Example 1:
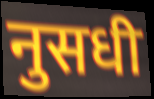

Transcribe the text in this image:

नुसधी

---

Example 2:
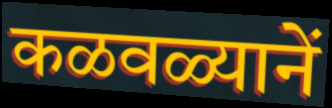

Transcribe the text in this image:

कळवळ्यानें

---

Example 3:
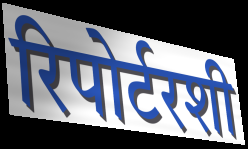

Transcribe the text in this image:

रिपोर्टरशी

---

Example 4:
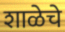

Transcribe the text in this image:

शाळेचे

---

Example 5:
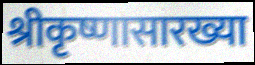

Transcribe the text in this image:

श्रीकृष्णासारख्या